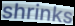
shrinks